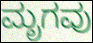
ಮೃಗವು